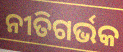
ନୀତିଗର୍ଭକ